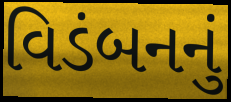
વિડંબનનું